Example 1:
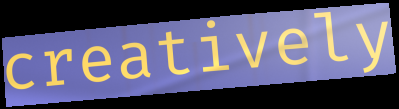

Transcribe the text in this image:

creatively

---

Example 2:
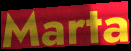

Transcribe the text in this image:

Marta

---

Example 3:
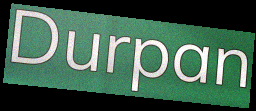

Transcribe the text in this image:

Durpan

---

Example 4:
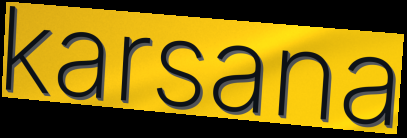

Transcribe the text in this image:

karsana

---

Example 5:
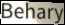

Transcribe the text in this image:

Behary